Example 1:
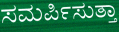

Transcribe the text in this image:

ಸಮರ್ಪಿಸುತ್ತಾ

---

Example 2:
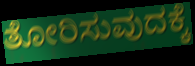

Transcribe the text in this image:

ತೋರಿಸುವುದಕ್ಕೆ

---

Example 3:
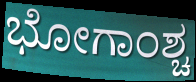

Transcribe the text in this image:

ಭೋಗಾಂಶ್ಚ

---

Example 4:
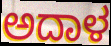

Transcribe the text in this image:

ಅದಾಳ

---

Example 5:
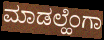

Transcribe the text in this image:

ಮಾಡಲ್ಹೆಂಗಾ